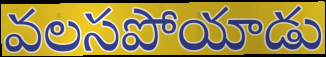
వలసపోయాడు